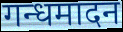
गन्धमादन